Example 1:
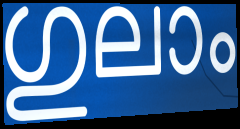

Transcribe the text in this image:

ഗുലാം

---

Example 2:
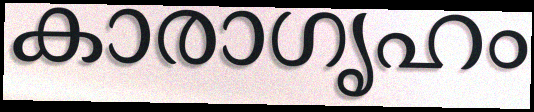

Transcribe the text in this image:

കാരാഗൃഹം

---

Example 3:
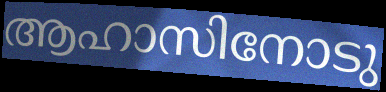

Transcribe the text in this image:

ആഹാസിനോടു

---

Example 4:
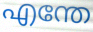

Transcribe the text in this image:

എന്തേ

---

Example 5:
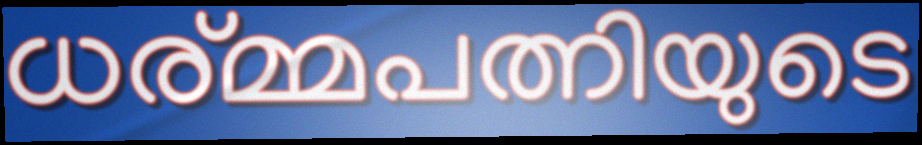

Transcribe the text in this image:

ധര്മ്മപത്നിയുടെ